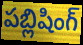
పబ్లిషింగ్